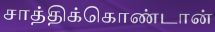
சாத்திக்கொண்டான்